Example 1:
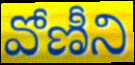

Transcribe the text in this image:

వోణీని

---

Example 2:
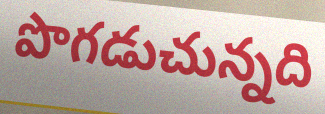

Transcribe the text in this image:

పొగడుచున్నది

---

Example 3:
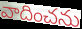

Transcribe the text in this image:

వాదించను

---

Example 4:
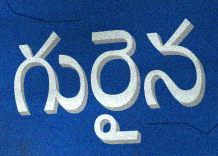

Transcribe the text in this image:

గురైన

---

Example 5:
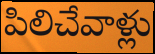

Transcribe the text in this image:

పిలిచేవాళ్లు